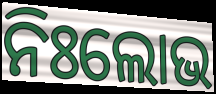
ନିଃଲୋଭ